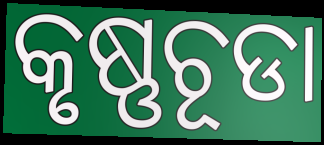
କୃଷ୍ଣଚୂଡା